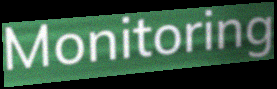
Monitoring